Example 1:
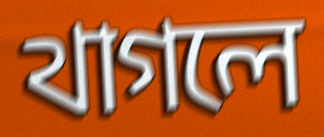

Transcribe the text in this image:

থাগলে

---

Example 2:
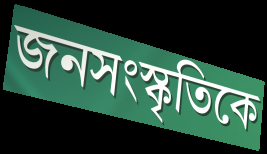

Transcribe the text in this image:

জনসংস্কৃতিকে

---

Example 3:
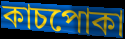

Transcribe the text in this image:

কাচপোকা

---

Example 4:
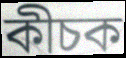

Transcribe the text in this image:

কীচক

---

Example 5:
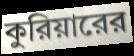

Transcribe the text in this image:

কুরিয়ারের